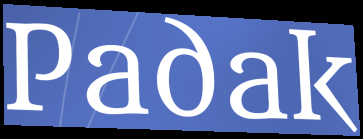
Padak